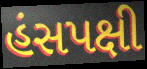
હંસપક્ષી